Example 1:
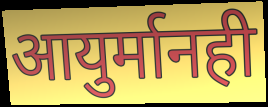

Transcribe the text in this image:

आयुर्मानही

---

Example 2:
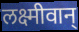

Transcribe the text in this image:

लक्ष्मीवान्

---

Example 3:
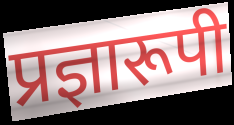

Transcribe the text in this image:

प्रज्ञारूपी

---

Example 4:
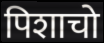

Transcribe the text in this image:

पिशाचो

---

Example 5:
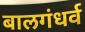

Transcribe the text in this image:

बालगंधर्व